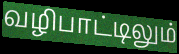
வழிபாட்டிலும்